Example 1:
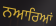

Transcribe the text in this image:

ਨਆਰਿਆਂ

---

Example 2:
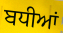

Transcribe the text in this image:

ਬਧੀਆਂ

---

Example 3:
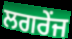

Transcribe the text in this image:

ਲਗਰੇਂਜ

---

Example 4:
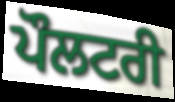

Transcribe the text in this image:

ਪੌਲਟਰੀ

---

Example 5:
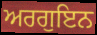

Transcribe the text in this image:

ਅਰਗੁਇਨ